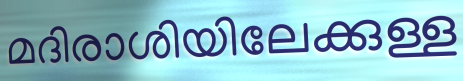
മദിരാശിയിലേക്കുള്ള